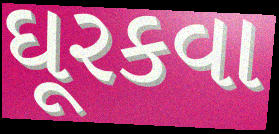
ઘૂરકવા